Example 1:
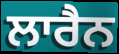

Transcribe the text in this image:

ਲਾਰੈਨ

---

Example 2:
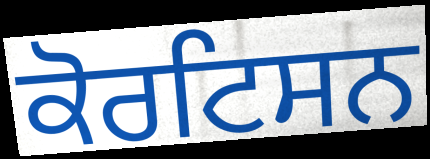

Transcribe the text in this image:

ਕੋਰਟਿਸਨ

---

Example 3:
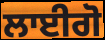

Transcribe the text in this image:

ਲਾਈਗੋ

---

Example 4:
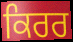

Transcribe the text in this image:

ਕਿਰਰ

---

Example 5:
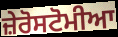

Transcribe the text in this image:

ਜ਼ੇਰੋਸਟੋਮੀਆ